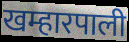
खम्हारपाली